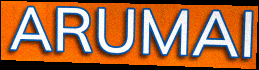
ARUMAI